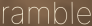
ramble